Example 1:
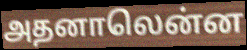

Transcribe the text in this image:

அதனாலென்ன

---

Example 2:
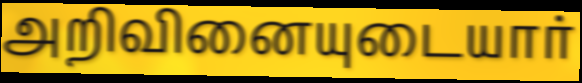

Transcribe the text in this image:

அறிவினையுடையார்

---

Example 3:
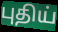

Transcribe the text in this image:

புதிய்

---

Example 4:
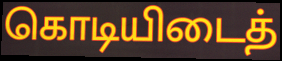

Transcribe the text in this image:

கொடியிடைத்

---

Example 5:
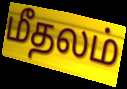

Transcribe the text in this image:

மீதலம்